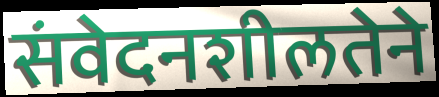
संवेदनशीलतेने